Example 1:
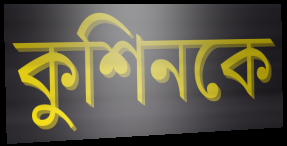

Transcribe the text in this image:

কুশিনকে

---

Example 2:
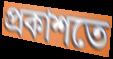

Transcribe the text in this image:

প্রকাশতে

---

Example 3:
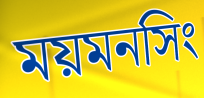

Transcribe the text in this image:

ময়মনসিং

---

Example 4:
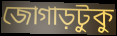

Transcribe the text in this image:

জোগাড়টুকু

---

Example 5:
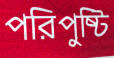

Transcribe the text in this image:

পরিপুষ্টি